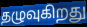
தழுவுகிறது